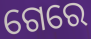
ଗେରେ